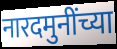
नारदमुनींच्या